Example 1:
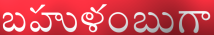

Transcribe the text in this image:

బహుళంబుగా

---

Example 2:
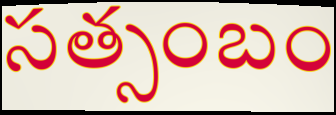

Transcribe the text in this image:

సత్సంబం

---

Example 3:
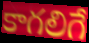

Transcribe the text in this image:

కాగలిగే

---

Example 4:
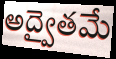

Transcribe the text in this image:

అద్వైతమే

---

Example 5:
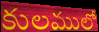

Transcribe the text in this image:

కులములో